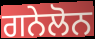
ਗਨੇਲੋਨ